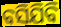
ବସିଯିବି